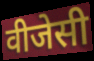
वीजेसी